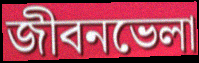
জীবনভেলা